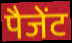
पैजेंट